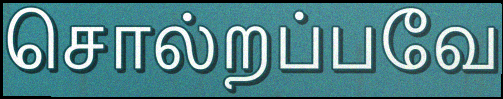
சொல்றப்பவே